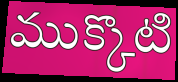
ముక్కొటి